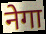
नेगा